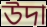
উদা